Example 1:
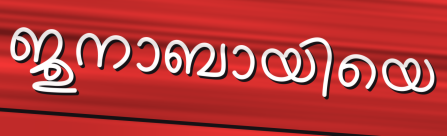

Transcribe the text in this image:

ജുനാബായിയെ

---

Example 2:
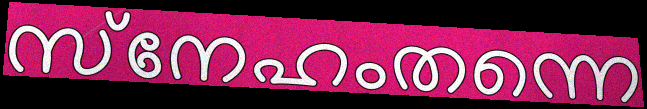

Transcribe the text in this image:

സ്‌നേഹംതന്നെ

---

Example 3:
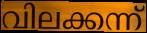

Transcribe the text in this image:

വിലക്കന്ന്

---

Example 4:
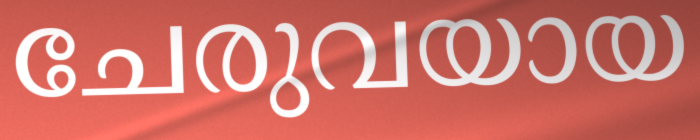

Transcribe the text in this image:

ചേരുവയായ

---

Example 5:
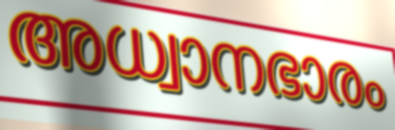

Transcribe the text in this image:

അധ്വാനഭാരം